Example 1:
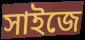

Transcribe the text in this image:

সাইজে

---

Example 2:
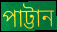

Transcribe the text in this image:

পাট্টান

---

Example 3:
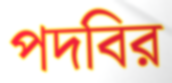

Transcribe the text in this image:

পদবির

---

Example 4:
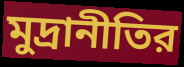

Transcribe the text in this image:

মুদ্রানীতির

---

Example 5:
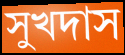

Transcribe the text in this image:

সুখদাস